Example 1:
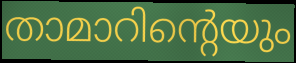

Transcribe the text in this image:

താമാറിന്റെയും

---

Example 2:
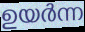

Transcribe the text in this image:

ഉയർന്ന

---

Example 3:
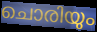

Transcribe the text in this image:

ചൊരിയും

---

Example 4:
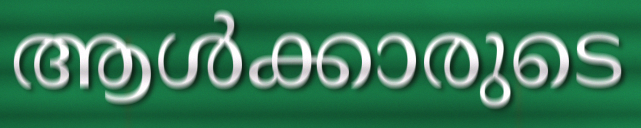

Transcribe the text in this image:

ആൾക്കാരുടെ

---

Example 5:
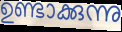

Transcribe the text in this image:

ഉണ്ടാക്കുന്നു